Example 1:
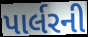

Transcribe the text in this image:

પાર્લરની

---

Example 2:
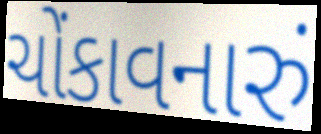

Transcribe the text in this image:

ચોંકાવનારું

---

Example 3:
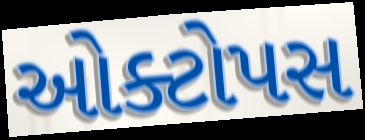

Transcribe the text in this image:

ઓક્ટોપસ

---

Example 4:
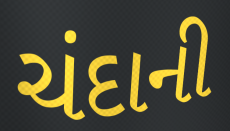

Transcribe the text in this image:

ચંદાની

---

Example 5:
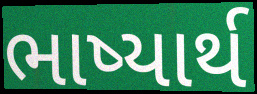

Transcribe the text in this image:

ભાષ્યાર્થ